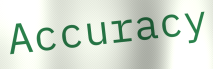
Accuracy